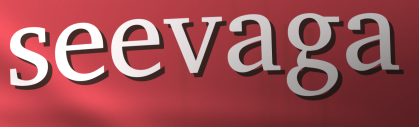
seevaga